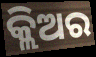
କ୍ଲିଅର